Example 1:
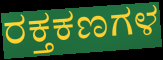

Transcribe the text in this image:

ರಕ್ತಕಣಗಳ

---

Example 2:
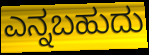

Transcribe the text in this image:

ಎನ್ನಬಹುದು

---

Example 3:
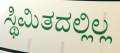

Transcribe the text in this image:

ಸ್ಥಿಮಿತದಲ್ಲಿಲ್ಲ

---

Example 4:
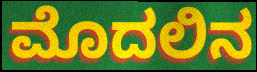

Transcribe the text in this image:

ಮೊದಲಿನ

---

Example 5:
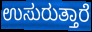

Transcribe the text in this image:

ಉಸುರುತ್ತಾರೆ